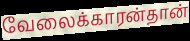
வேலைக்காரன்தான்